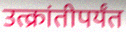
उत्क्रांतीपर्यंत